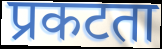
प्रकटता